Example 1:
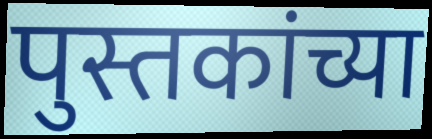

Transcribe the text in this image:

पुस्तकांच्या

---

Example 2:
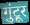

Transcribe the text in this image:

गुंटूर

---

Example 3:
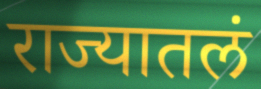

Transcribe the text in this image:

राज्यातलं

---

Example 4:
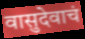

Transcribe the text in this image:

वासुदेवाचं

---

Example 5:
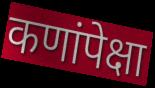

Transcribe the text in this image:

कणांपेक्षा